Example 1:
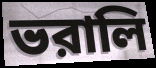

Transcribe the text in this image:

ভরালি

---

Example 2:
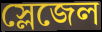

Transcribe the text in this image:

স্লেজেল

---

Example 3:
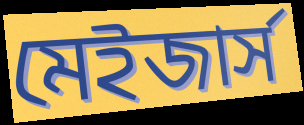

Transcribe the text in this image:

মেইজার্স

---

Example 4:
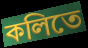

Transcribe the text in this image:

কলিতে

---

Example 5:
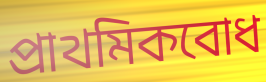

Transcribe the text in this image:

প্রাথমিকবোধ